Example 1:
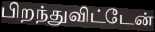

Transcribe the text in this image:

பிறந்துவிட்டேன்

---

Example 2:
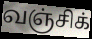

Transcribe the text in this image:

வஞ்சிக்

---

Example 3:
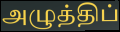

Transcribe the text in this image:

அழுத்திப்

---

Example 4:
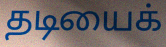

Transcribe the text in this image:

தடியைக்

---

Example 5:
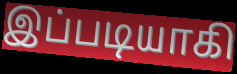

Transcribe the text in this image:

இப்படியாகி